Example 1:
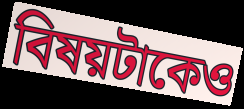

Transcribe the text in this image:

বিষয়টাকেও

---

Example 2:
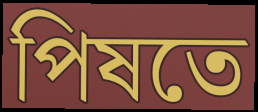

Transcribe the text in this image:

পিষতে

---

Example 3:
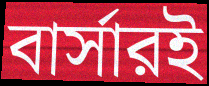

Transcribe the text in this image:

বার্সারই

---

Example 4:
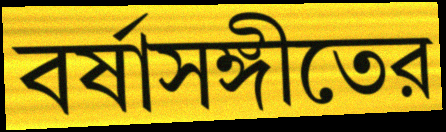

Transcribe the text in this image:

বর্ষাসঙ্গীতের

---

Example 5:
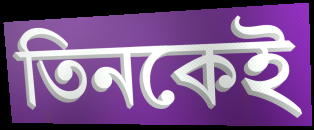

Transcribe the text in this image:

তিনকেই